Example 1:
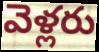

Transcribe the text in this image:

వెళ్లరు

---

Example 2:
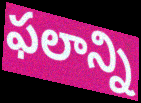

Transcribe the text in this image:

ఫలాన్ని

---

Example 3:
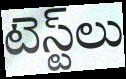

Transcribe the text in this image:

టెస్ట్‌లు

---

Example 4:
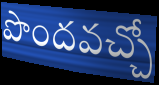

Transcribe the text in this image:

పొందవచ్చో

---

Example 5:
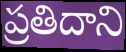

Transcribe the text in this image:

ప్రతిదాని